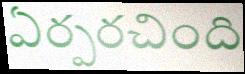
ఏర్పరచింది